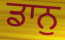
ਡਾਨੁ